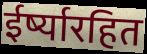
ईर्ष्यारहित